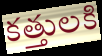
కత్తులకి